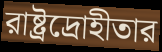
রাষ্ট্রদ্রোহীতার